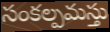
సంకల్పమస్తు